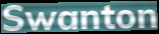
Swanton